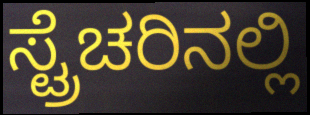
ಸ್ಟ್ರೆಚರಿನಲ್ಲಿ